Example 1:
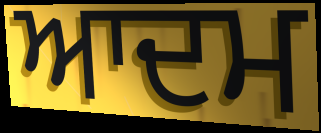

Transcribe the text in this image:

ਆਦਮ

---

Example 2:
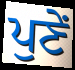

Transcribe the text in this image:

ਪੁਣੇਂ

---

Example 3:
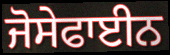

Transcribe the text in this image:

ਜੋਸੇਫਾਈਨ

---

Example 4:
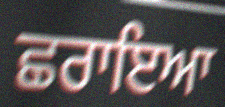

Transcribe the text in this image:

ਛਰਾਇਆ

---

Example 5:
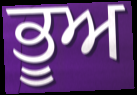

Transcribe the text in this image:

ਭੂਅ